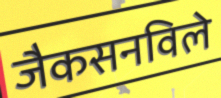
जैकसनविले